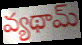
వ్యథామ్